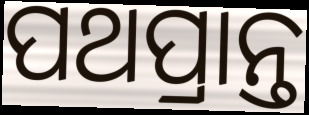
ପଥପ୍ରାନ୍ତ